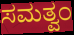
ಸಮತ್ವಂ